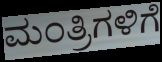
ಮಂತ್ರಿಗಳಿಗೆ